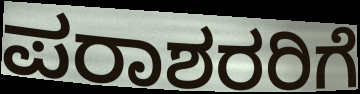
ಪರಾಶರರಿಗೆ